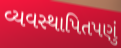
વ્યવસ્થાપિતપણું